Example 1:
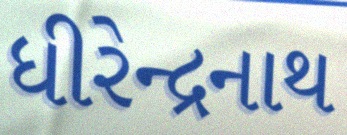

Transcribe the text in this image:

ધીરેન્દ્રનાથ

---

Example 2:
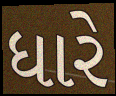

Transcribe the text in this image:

ધારે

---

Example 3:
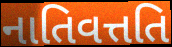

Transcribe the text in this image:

નાતિવત્તતિ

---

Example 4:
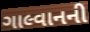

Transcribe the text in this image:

ગાલ્વાનની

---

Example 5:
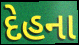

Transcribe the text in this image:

દેહના